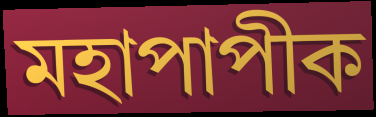
মহাপাপীক